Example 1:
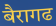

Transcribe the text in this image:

बैरागढ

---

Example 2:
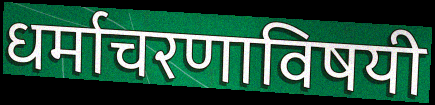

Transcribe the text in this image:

धर्माचरणाविषयी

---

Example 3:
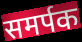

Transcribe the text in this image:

समर्पक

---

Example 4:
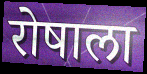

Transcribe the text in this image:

रोषाला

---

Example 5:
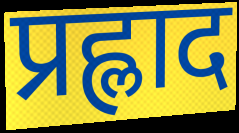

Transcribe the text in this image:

प्रह्लाद